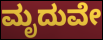
ಮೃದುವೇ